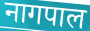
नागपाल